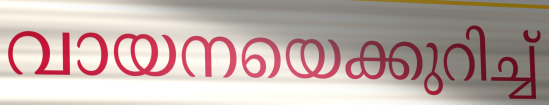
വായനയെക്കുറിച്ച്